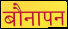
बौनापन